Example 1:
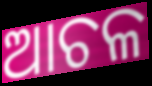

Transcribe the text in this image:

ଆଚଳ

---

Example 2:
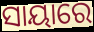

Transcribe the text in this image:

ସାୟାରେ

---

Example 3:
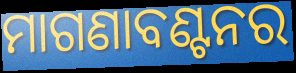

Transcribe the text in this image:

ମାଗଣାବଣ୍ଟନର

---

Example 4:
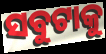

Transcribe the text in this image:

ସବୁଟାକୁ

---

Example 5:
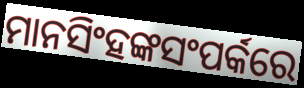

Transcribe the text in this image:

ମାନସିଂହଙ୍କସଂପର୍କରେ